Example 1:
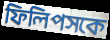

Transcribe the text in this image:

ফিলিপসকে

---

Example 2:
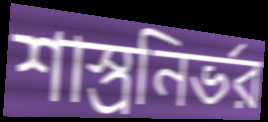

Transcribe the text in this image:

শাস্ত্রনির্ভর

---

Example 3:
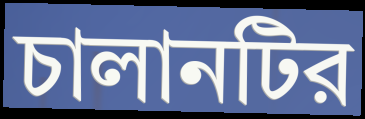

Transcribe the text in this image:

চালানটির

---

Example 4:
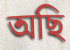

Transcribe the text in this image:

অছি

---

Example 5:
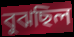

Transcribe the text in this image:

বুঝছিল